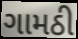
ગામઠી